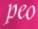
peo